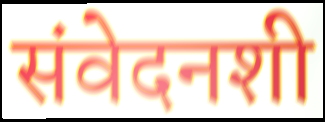
संवेदनशी